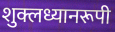
शुक्लध्यानरूपी